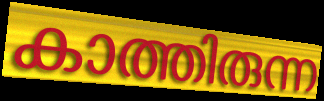
കാത്തിരുന്ന